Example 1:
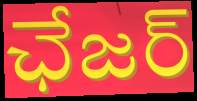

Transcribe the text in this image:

ఛేజర్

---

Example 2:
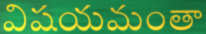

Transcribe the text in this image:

విషయమంతా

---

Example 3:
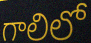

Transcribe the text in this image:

గాలిలో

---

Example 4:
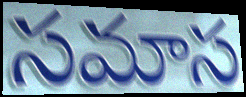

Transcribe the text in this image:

సమాస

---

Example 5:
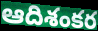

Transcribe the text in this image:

ఆదిశంకర